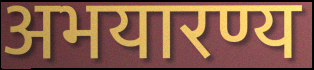
अभयारण्य